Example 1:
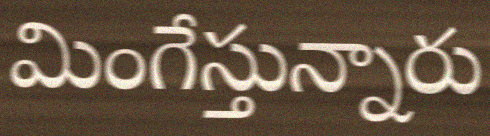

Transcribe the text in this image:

మింగేస్తున్నారు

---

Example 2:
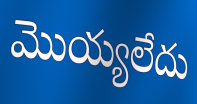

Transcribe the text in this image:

మొయ్యలేదు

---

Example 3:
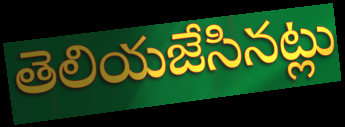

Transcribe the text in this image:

తెలియజేసినట్లు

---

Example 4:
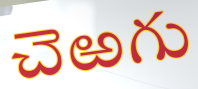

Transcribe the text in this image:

చెఱగు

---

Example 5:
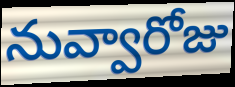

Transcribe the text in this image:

నువ్వారోజు